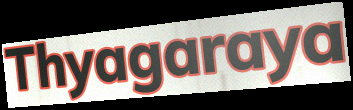
Thyagaraya